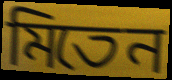
মিতেন